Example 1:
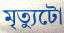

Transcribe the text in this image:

মৃত্যুটো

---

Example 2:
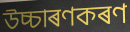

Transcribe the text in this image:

উচ্চাৰণকৰণ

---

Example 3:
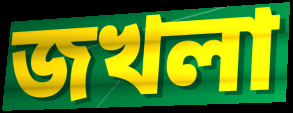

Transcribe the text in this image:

জখলা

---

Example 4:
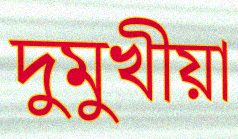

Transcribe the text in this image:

দুমুখীয়া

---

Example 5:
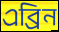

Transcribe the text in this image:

এব্ৰিন